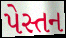
પેસ્તન